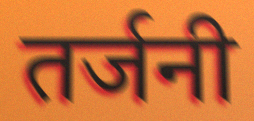
तर्जनी